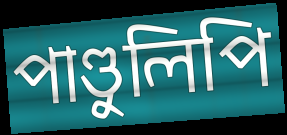
পাণ্ডুলিপি